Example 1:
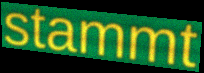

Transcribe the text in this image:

stammt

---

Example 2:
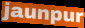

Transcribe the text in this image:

jaunpur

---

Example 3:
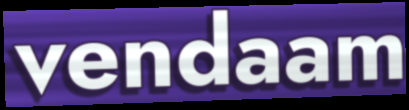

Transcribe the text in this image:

vendaam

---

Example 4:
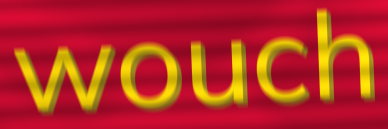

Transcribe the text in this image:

wouch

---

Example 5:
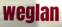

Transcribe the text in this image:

weglan